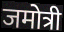
जमोत्री